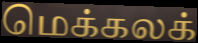
மெக்கலக்